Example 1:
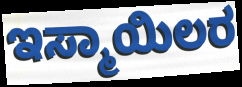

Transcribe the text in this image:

ಇಸ್ಮಾಯಿಲರ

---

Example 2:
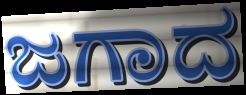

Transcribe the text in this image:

ಜಗಾದ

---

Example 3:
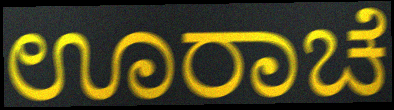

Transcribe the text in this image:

ಊರಾಚೆ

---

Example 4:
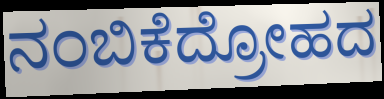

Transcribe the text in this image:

ನಂಬಿಕೆದ್ರೋಹದ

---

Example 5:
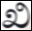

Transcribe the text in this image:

ಖಿ